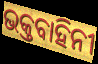
ଭକ୍ତବାହିନୀ